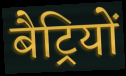
बैट्रियों